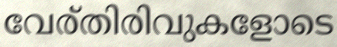
വേര്തിരിവുകളോടെ